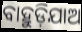
ବାହୁଡ଼ିଯାଅ